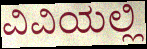
ವಿವಿಯಲ್ಲಿ